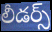
లీడర్స్